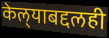
केल्याबद्दलही